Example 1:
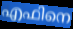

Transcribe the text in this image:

എഫിനെ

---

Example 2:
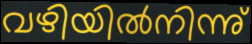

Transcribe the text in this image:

വഴിയിൽനിന്നു്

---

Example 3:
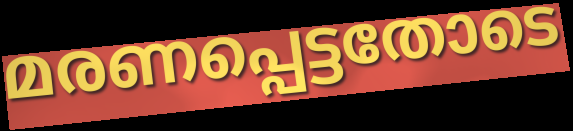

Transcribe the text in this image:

മരണപ്പെട്ടതോടെ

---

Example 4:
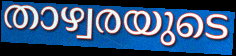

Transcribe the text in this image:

താഴ്വരയുടെ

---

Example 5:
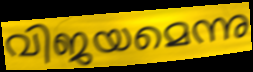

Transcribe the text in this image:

വിജയമെന്നു